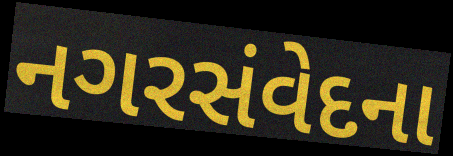
નગરસંવેદના